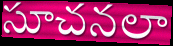
సూచనలా